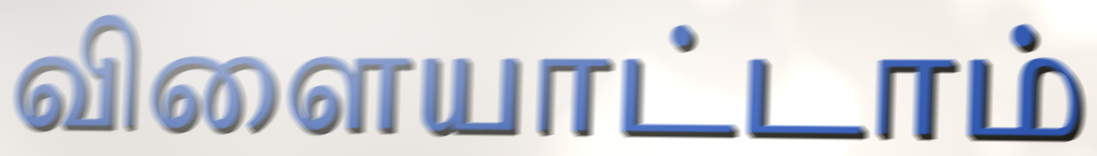
விளையாட்டாம்